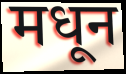
मधून